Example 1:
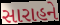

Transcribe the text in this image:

સારાહને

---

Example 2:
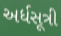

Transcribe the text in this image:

અર્ધસૂત્રી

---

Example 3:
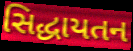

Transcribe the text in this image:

સિદ્ધાયતન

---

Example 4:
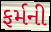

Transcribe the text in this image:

ફર્મની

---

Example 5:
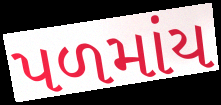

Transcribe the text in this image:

પળમાંય